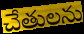
చేతులను